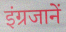
इंग्रजानें